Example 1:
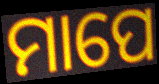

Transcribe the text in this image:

ମାପେ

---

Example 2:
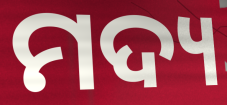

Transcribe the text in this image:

ମଦ୍ୟ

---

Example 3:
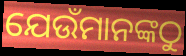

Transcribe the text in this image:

ଯେଉଁମାନଙ୍କଠୁ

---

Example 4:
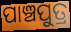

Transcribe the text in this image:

ପାଞ୍ଚପୁତ୍ର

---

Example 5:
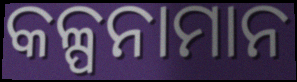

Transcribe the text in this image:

କଳ୍ପନାମାନ